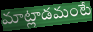
మాట్లాడమంటే